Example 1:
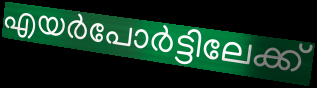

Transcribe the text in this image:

എയർപോർട്ടിലേക്ക്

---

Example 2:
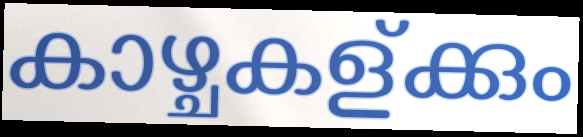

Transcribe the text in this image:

കാഴ്ചകള്ക്കും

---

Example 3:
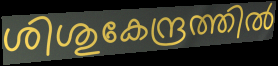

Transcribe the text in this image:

ശിശുകേന്ദ്രത്തിൽ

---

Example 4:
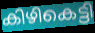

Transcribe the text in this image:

കിഴികെട്ടി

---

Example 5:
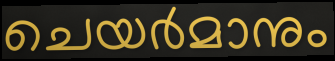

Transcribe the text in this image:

ചെയർമാനും